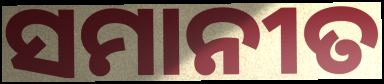
ସମାନୀତ